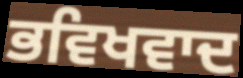
ਭਵਿਖਵਾਦ